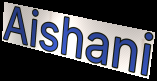
Aishani